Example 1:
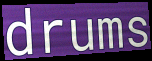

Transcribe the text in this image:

drums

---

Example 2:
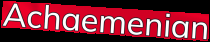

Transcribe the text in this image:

Achaemenian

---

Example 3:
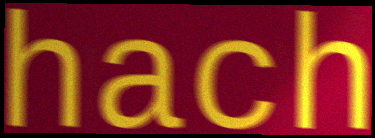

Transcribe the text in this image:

hach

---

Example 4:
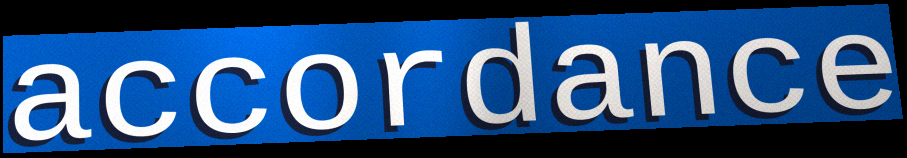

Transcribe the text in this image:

accordance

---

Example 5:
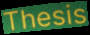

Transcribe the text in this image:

Thesis